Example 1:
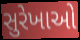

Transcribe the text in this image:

સુરેખાઓ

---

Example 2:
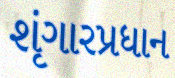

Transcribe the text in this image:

શૃંગારપ્રધાન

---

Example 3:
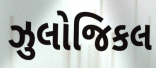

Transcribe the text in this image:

ઝુલોજિકલ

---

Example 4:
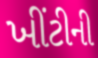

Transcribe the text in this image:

ખીંટીની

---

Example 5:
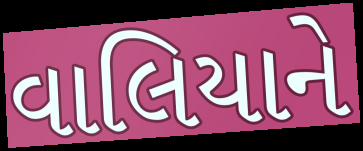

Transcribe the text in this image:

વાલિયાને